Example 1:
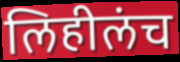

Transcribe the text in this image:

लिहीलंच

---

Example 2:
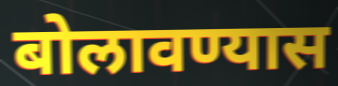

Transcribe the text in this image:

बोलावण्यास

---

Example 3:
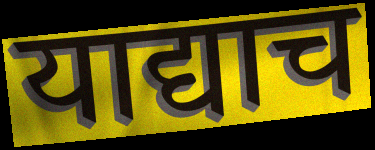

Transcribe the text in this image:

याद्याच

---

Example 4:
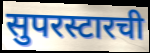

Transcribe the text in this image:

सुपरस्टारची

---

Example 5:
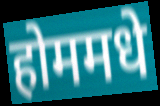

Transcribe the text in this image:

होममधे